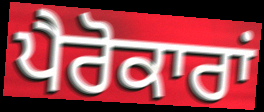
ਪੈਰੋਕਾਰਾਂ